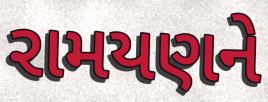
રામયણને